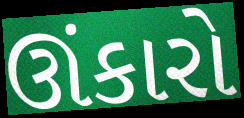
ઊંકારો